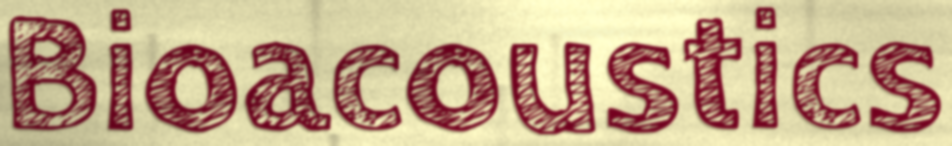
Bioacoustics